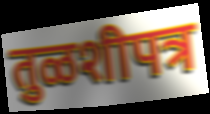
तुळशीपत्र